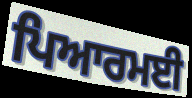
ਪਿਆਰਮਈ